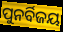
ପୁନର୍ବିଜୟ